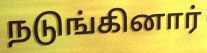
நடுங்கினார்